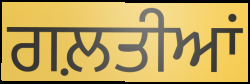
ਗਲ਼ਤੀਆਂ